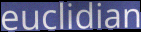
euclidian